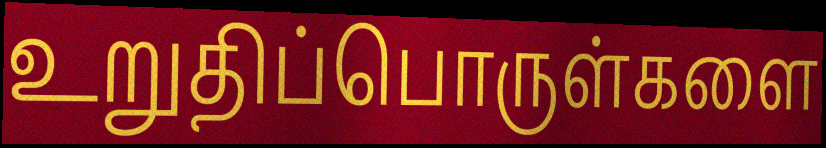
உறுதிப்பொருள்களை